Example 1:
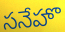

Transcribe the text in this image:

సనేహొ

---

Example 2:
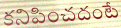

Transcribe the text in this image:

కనిపించదంటే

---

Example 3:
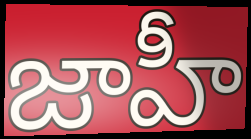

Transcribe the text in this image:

జాహీ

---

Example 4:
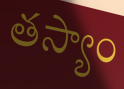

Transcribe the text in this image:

తస్యాం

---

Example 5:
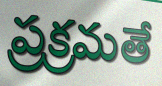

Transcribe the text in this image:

ప్రక్రమతే